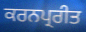
ਕਰਨਪ੍ਰਰੀਤ